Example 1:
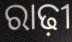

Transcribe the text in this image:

ରାଢ଼ୀ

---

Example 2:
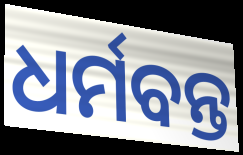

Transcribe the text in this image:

ଧର୍ମବନ୍ତ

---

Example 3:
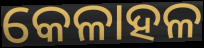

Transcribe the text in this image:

କେଳାହଳ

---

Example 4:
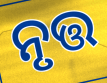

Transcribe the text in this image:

ନୃତ୍ତ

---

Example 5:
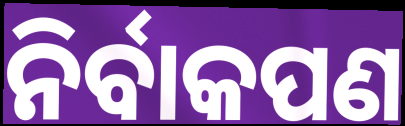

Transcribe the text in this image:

ନିର୍ବାକପଣ